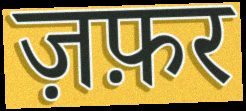
ज़फ़र